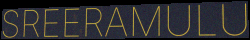
SREERAMULU